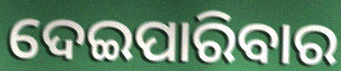
ଦେଇପାରିବାର